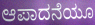
ಆಪಾದನೆಯೂ